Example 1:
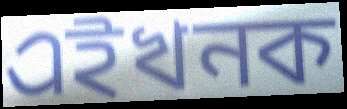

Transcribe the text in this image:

এইখনক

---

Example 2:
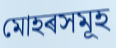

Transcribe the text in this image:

মোহৰসমূহ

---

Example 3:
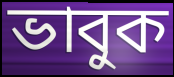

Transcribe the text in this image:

ভাবুক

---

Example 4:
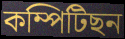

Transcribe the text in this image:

কম্পিটিছন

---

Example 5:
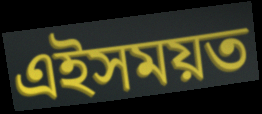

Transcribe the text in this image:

এইসময়ত